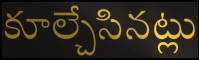
కూల్చేసినట్లు